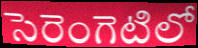
సెరెంగెటిలో